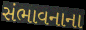
સંભાવનાના